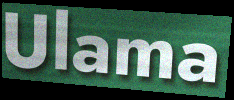
Ulama